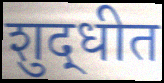
शुद्धीत